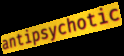
antipsychotic